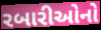
રબારીઓનો